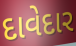
દાવેદાર